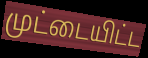
முட்டையிட்ட